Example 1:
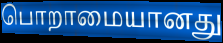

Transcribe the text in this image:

பொறாமையானது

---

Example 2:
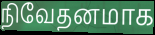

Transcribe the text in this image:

நிவேதனமாக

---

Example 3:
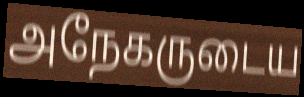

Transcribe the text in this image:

அநேகருடைய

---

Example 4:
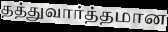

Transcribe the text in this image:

தத்துவார்த்தமான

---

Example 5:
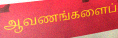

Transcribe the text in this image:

ஆவணங்களைப்